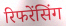
रिफरेंसिंग